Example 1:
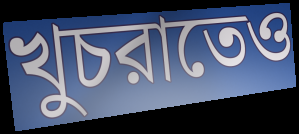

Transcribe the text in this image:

খুচরাতেও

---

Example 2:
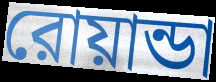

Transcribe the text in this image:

রোয়ান্ডা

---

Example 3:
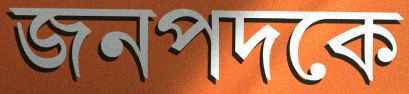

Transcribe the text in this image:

জনপদকে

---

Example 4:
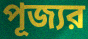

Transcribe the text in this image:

পূজ্যর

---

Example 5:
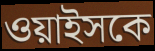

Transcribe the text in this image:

ওয়াইসকে